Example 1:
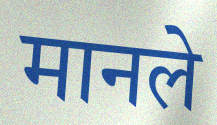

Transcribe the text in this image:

मानले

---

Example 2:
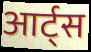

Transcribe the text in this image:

आर्ट्स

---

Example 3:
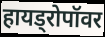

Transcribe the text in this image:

हायड्रोपॉवर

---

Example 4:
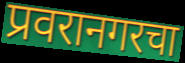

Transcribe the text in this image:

प्रवरानगरचा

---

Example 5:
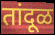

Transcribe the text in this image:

तांदूळ